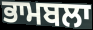
ਭਾਮਬਲਾ